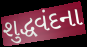
શુદ્ધવંદના